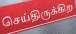
செய்திருக்கிற